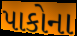
પાકોના